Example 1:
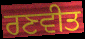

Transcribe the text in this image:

ਰਣਵੀਤ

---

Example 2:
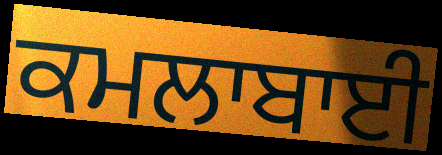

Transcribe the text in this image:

ਕਮਲਾਬਾਈ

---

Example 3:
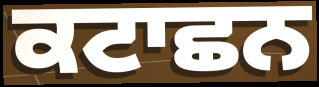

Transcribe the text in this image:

ਕਟਾਛਨ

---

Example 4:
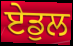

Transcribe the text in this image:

ਏਡੁਲ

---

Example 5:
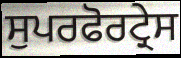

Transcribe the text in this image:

ਸੁਪਰਫੋਰਟ੍ਰੇਸ